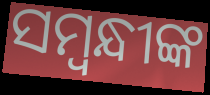
ସମ୍ବନ୍ଧୀଙ୍କ